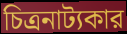
চিত্রনাট্যকার